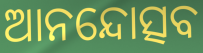
ଆନନ୍ଦୋତ୍ସବ